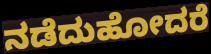
ನಡೆದುಹೋದರೆ